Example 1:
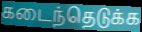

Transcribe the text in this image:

கடைந்தெடுக்க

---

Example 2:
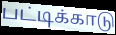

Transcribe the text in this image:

பட்டிக்காடு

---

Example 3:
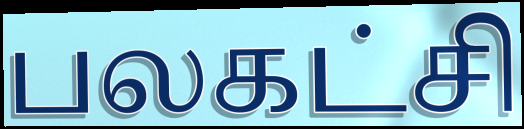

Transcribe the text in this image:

பலகட்சி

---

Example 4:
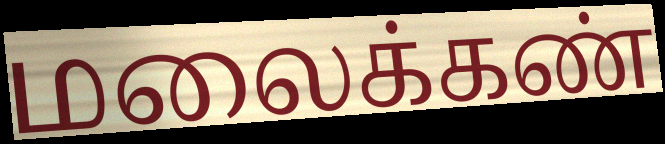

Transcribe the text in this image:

மலைக்கண்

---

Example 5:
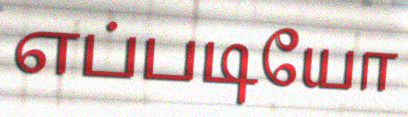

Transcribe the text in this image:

எப்படியோ